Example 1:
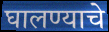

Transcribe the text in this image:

घालण्याचे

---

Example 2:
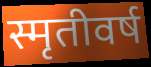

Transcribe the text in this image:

स्मृतीवर्ष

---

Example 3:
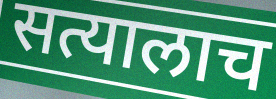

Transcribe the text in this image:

सत्यालाच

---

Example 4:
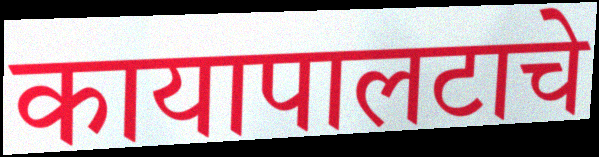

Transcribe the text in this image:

कायापालटाचे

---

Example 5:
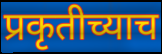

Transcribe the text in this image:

प्रकृतीच्याच